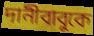
দানীবাবুকে